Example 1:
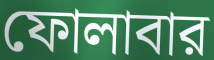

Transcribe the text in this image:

ফোলাবার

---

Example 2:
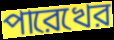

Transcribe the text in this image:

পারেখের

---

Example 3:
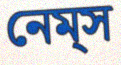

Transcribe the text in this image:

নেম্‌স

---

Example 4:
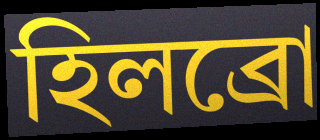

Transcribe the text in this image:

হিলব্রো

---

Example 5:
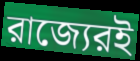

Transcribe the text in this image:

রাজ্যেরই